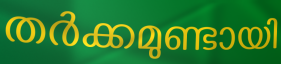
തർക്കമുണ്ടായി